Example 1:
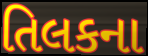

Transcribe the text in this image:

તિલકના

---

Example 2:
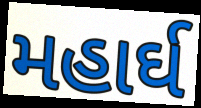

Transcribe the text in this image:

મહાર્ઘ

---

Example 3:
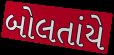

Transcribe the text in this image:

બોલતાંયે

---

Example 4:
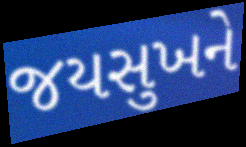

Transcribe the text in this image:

જયસુખને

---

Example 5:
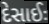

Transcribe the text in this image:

દેસાઈઃ